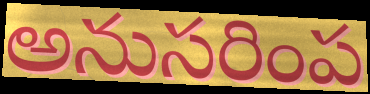
అనుసరింప